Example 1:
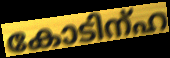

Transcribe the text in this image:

കോടിന്ഹ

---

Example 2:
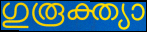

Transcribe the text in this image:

ഗുരൂക്ത്യാ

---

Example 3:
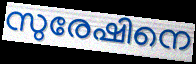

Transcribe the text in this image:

സുരേഷിനെ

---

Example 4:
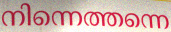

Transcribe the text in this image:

നിന്നെത്തന്നെ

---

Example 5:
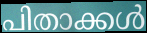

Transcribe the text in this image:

പിതാക്കൾ